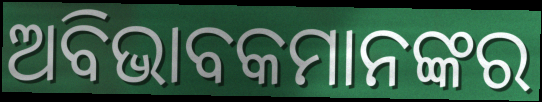
ଅବିଭାବକମାନଙ୍କର